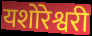
यशोरेश्वरी